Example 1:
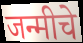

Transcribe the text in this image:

जन्मीचे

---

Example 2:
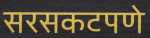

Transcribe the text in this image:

सरसकटपणे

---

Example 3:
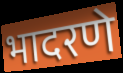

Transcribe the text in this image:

भादरणे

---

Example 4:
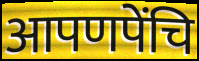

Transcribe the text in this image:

आपणपेंचि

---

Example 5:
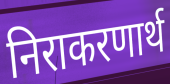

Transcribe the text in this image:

निराकरणार्थ